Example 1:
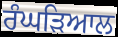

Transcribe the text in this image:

ਰੰਘੜਿਆਲ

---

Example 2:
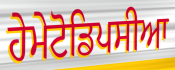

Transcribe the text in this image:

ਹੇਮੇਟੋਡਿਪਸੀਆ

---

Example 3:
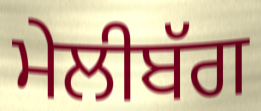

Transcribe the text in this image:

ਮੇਲੀਬੱਗ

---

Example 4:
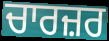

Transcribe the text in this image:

ਚਾਰਜ਼ਰ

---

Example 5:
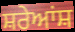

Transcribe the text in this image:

ਸ਼ਰੇਆਂਸ਼